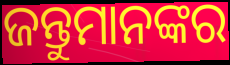
ଜନ୍ତୁମାନଙ୍କର